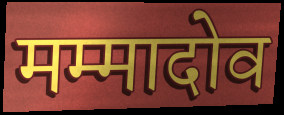
मम्मादोव